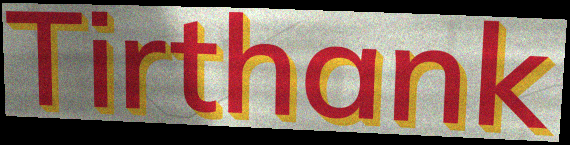
Tirthank